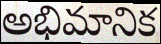
అభిమానిక